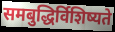
समबुद्धिर्विशिष्यते